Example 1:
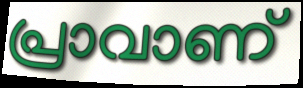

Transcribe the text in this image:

പ്രാവാണ്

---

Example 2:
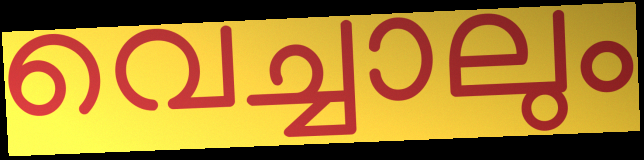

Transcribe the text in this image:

വെച്ചാലും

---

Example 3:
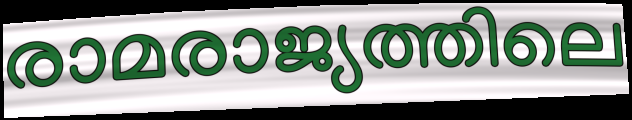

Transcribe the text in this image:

രാമരാജ്യത്തിലെ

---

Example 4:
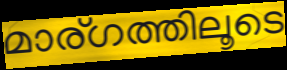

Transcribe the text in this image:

മാര്ഗത്തിലൂടെ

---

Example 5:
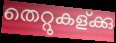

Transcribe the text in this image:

തെറ്റുകള്ക്കു